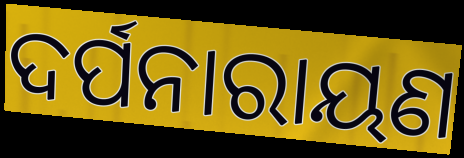
ଦର୍ପନାରାୟଣ